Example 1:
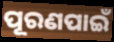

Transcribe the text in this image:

ପୂରଣପାଇଁ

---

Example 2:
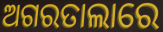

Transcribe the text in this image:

ଅଗରତାଲାରେ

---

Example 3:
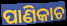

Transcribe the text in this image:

ପାଣିକାଚ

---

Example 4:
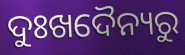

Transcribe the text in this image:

ଦୁଃଖଦୈନ୍ୟରୁ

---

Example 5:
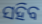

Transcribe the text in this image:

ସହିବ